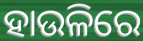
ହାଉଳିରେ